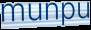
munpu